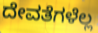
ದೇವತೆಗಳೆಲ್ಲ